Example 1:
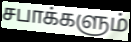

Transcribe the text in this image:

சபாக்களும்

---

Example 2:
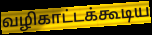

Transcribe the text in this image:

வழிகாட்டக்கூடிய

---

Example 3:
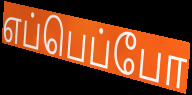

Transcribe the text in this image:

எப்பெப்போ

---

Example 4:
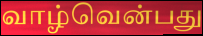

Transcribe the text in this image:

வாழ்வென்பது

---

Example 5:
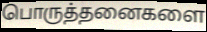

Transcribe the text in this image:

பொருத்தனைகளை